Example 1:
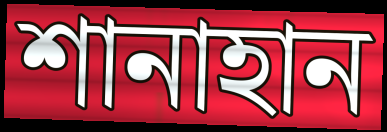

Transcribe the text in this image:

শানাহান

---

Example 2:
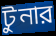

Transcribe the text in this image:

টুনার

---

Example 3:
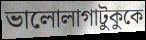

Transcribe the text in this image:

ভালোলাগাটুকুকে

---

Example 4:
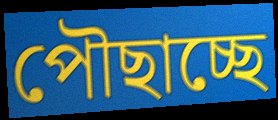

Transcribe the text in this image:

পৌছাচ্ছে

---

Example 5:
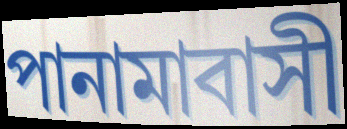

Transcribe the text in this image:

পানামাবাসী